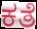
ಕತೆ